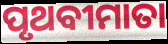
ପୃଥବୀମାତା